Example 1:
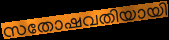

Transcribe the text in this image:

സതോഷവതിയായി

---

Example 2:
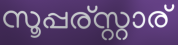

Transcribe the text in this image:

സൂപ്പര്സ്റ്റാര്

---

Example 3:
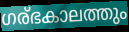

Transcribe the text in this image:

ഗര്ഭകാലത്തും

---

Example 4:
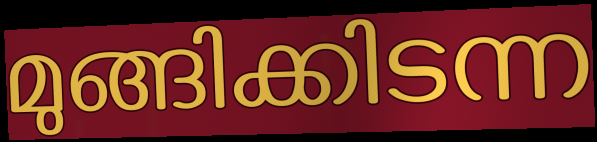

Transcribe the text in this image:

മുങ്ങിക്കിടന്ന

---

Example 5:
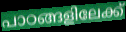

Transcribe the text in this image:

പാഠങ്ങളിലേക്ക്